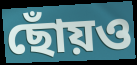
ছোঁয়ও